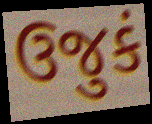
ઉજુકં